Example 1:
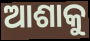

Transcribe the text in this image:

ଆଶାକୁ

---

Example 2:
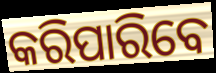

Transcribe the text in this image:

କରିପାରିବେ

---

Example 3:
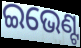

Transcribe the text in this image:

ଇଭେଣ୍ଟ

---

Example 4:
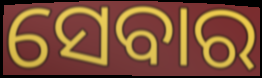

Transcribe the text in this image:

ସେବାର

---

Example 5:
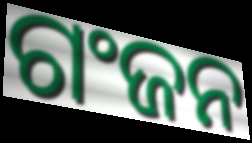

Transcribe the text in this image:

ଗଂଜନ